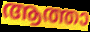
ആത്താ